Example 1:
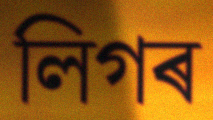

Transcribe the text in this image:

লিগৰ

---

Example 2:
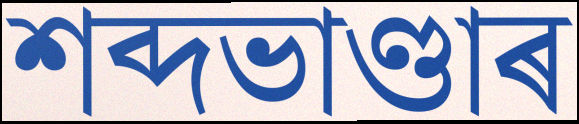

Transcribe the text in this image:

শব্দভাণ্ডাৰ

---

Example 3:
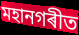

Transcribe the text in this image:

মহানগৰীত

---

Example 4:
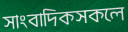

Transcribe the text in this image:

সাংবাদিকসকলে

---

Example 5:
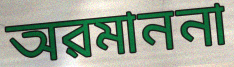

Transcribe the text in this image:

অৱমাননা